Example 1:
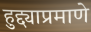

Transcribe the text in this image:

हुद्द्याप्रमाणे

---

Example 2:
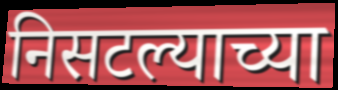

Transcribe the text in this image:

निसटल्याच्या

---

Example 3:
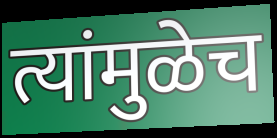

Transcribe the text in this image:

त्यांमुळेच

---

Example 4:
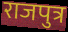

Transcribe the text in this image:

राजपुत्र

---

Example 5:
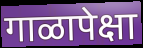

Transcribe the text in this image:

गाळापेक्षा